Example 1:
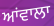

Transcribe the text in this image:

ਆਂਵਾਲਾ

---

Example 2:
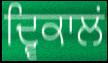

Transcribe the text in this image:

ਦ੍ਵਿਕਾਲਂ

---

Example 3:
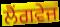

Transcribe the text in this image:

ਲੈਂਗਵੇਜ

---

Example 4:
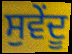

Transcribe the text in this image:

ਸੁਵੇਂਦੂ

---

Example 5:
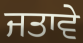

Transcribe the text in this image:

ਜਤਾਵੇ